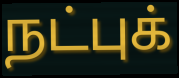
நட்புக்